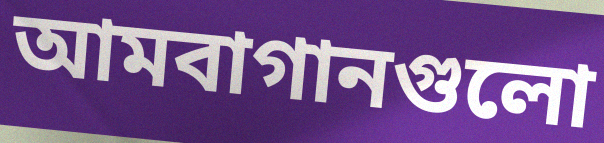
আমবাগানগুলো